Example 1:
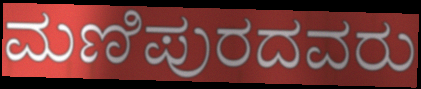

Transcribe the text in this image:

ಮಣಿಪುರದವರು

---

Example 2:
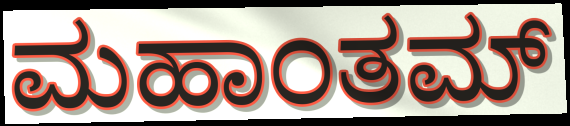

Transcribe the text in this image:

ಮಹಾಂತಮ್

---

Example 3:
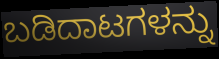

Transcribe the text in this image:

ಬಡಿದಾಟಗಳನ್ನು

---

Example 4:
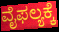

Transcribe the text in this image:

ವೈಫಲ್ಯಕ್ಕೆ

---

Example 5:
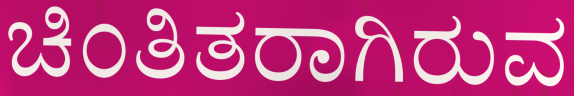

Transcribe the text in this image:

ಚಿಂತಿತರಾಗಿರುವ